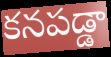
కనపడ్డా